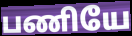
பணியே